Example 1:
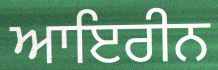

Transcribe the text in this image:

ਆਇਰੀਨ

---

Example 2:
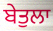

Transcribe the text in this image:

ਬੇਤੁਲਾ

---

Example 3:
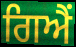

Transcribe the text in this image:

ਗਿਐਂ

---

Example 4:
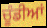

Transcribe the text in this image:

ਚੂੰਡੀਆਂ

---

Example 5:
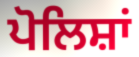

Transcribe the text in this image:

ਪੋਲਿਸ਼ਾਂ